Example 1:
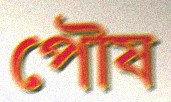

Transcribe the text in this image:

পৌষ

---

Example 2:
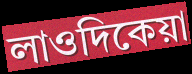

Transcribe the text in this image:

লাওদিকেয়া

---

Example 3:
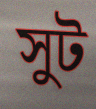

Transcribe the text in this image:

সুট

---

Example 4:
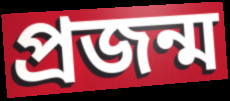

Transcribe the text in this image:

প্রজন্ম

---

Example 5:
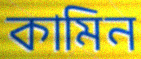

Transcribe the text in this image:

কামিন